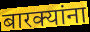
बारक्यांना